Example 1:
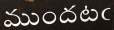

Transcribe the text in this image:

ముందటఁ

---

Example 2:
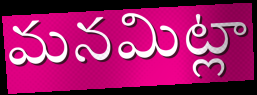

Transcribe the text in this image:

మనమిట్లా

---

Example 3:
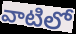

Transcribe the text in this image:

వాటిలో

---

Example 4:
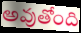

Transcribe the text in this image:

అవుతోంది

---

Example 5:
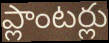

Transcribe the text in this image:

ప్లాంటర్లు